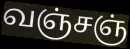
வஞ்சஞ்